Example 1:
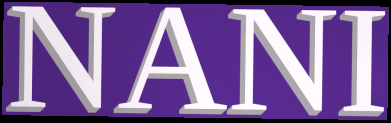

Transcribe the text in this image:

NANI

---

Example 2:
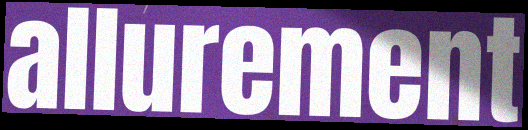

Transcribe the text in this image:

allurement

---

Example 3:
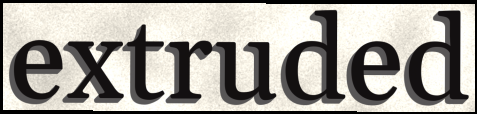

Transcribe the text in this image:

extruded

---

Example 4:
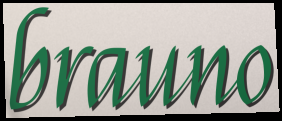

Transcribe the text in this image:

brauno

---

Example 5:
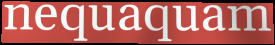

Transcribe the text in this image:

nequaquam